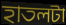
হাতলটা